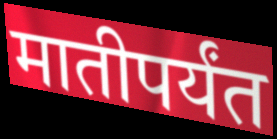
मातीपर्यंत